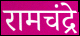
रामचंद्रे